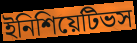
ইনিশিয়েটিভস